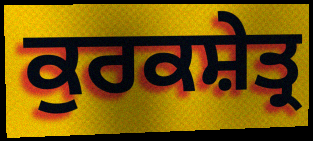
ਕੁਰਕਸ਼ੇਤ੍ਰ